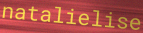
natalielise